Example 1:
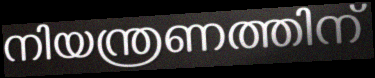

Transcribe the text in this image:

നിയന്ത്രണത്തിന്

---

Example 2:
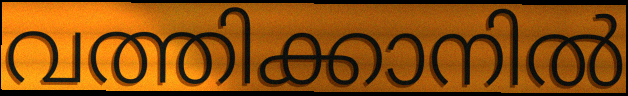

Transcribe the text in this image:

വത്തിക്കാനിൽ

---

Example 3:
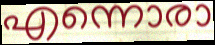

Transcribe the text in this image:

എന്നൊരാ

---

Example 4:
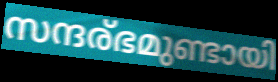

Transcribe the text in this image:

സന്ദര്ഭമുണ്ടായി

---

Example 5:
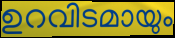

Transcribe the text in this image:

ഉറവിടമായും